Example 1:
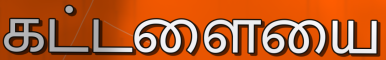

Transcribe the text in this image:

கட்டளையை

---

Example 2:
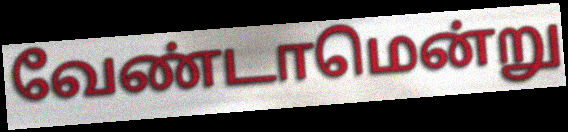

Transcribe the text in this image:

வேண்டாமென்று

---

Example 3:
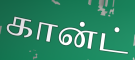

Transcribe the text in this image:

கான்ட்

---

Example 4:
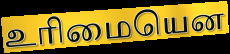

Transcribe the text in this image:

உரிமையென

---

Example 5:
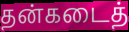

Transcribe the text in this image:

தன்கடைத்